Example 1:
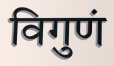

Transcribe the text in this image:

विगुणं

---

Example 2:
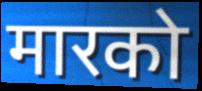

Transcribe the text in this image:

मारको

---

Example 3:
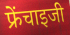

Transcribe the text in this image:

फ्रेंचाइजी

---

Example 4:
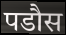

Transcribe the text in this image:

पडौस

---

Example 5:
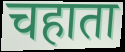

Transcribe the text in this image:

चहाता